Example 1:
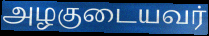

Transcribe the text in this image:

அழகுடையவர்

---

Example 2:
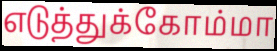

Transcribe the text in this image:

எடுத்துக்கோம்மா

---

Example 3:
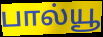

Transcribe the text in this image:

பால்யூ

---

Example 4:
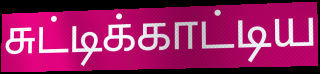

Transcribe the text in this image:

சுட்டிக்காட்டிய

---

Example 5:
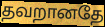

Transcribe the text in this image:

தவறானதே